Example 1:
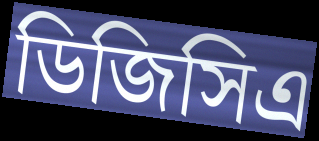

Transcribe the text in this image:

ডিজিসিএ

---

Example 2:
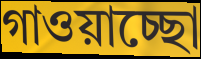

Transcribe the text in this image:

গাওয়াচ্ছো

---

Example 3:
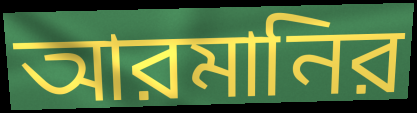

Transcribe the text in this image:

আরমানির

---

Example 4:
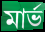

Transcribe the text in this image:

মার্ভ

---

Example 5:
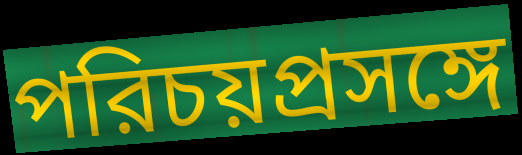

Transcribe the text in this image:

পরিচয়প্রসঙ্গে